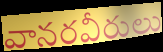
వానరవీరులు